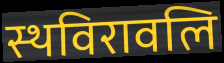
स्थविरावलि